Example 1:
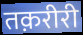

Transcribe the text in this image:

तक़रीरी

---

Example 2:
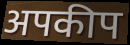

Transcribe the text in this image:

अपकीप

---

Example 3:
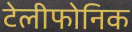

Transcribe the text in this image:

टेलीफोनिक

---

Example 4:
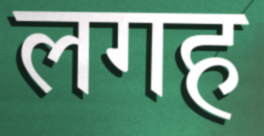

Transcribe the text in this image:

लगह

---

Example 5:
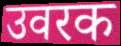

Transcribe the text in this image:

उवरक